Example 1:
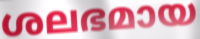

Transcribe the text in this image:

ശലഭമായ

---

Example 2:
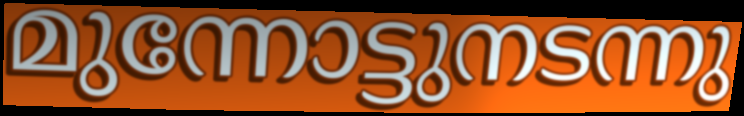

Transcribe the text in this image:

മുന്നോട്ടുനടന്നു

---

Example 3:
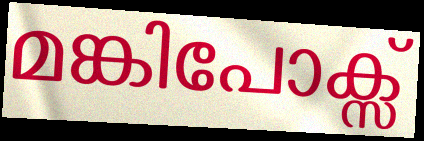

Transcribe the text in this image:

മങ്കിപോക്സ്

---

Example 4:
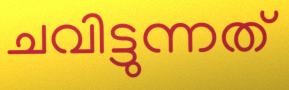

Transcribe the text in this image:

ചവിട്ടുന്നത്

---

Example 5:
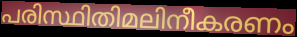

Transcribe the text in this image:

പരിസ്ഥിതിമലിനീകരണം